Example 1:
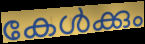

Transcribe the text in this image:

കേൾക്കും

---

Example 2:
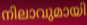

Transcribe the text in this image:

നിലാവുമായി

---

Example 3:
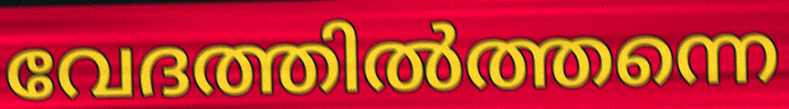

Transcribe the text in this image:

വേദത്തിൽത്തന്നെ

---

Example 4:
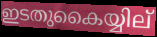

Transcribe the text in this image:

ഇടതുകൈയ്യില്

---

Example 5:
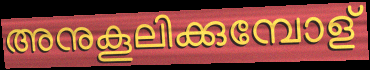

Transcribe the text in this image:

അനുകൂലിക്കുമ്പോള്